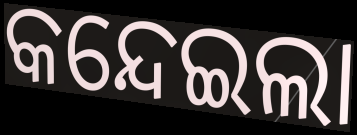
କନ୍ଦେଇଲା